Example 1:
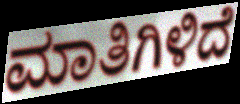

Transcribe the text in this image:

ಮಾತಿಗಿಳಿದೆ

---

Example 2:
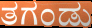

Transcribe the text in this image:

ತಗಂಡು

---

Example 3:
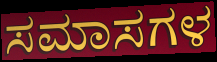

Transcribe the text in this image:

ಸಮಾಸಗಳ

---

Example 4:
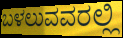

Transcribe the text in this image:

ಬಳಲುವವರಲ್ಲಿ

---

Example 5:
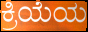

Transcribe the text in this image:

ಕ್ರಿಯೆಯ